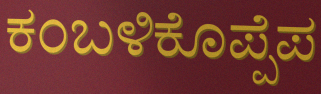
ಕಂಬಳಿಕೊಪ್ಪೆಪ